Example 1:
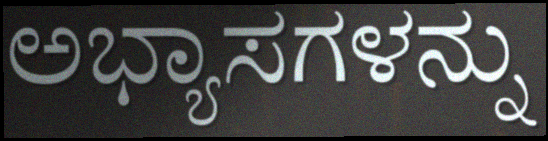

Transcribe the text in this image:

ಅಭ್ಯಾಸಗಳನ್ನು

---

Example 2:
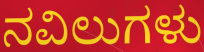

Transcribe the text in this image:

ನವಿಲುಗಳು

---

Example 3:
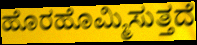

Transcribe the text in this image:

ಹೊರಹೊಮ್ಮಿಸುತ್ತದೆ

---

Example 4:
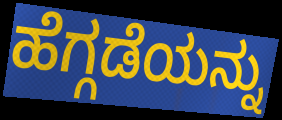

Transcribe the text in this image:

ಹೆಗ್ಗಡೆಯನ್ನು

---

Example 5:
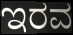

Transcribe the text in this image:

ಇರವ